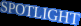
SPOTLIGHT